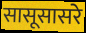
सासूसासरे